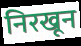
निरखून